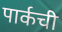
पार्कची